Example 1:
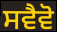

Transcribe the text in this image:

ਸਵੈਵੋ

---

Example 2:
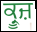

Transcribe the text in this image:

ਕ੍ਰੂਜ਼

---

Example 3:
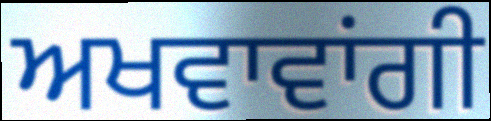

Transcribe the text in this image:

ਅਖਵਾਵਾਂਗੀ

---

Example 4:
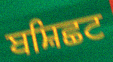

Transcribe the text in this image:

ਬਸ਼ਿਛਟ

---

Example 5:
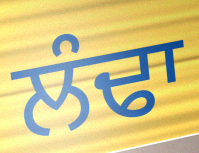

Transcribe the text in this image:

ਲੰਢਾ